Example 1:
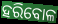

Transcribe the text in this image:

ହରିବୋଳ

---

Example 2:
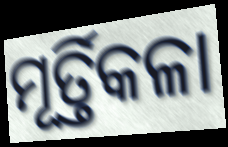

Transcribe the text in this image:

ମୂର୍ତ୍ତିକଳା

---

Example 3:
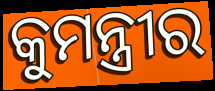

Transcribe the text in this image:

କୁମନ୍ତ୍ରୀର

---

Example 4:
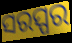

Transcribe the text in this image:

ସରସ୍ପର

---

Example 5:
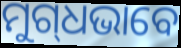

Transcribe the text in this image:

ମୁଗ୍‌ଧଭାବେ